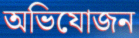
অভিযোজন